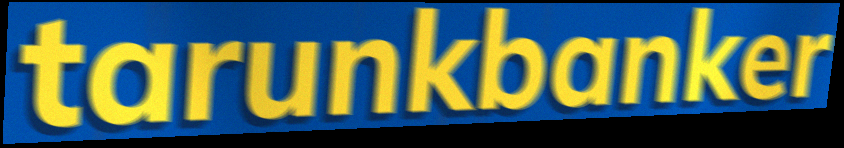
tarunkbanker